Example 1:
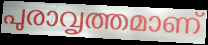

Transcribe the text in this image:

പുരാവൃത്തമാണ്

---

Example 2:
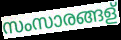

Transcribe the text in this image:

സംസാരങ്ങള്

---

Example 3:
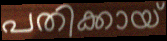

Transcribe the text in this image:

പതിക്കായ്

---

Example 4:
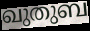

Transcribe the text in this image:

ഖുതുബ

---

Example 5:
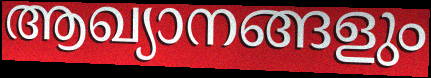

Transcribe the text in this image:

ആഖ്യാനങ്ങളും